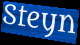
Steyn